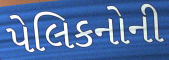
પેલિકનોની